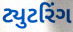
ટ્યુટરિંગ